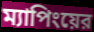
ম্যাপিংয়ের